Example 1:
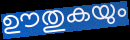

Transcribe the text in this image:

ഊതുകയും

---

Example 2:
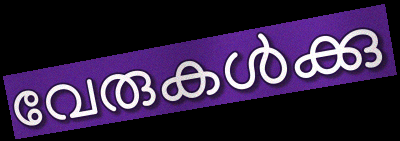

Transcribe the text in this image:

വേരുകൾക്കു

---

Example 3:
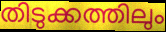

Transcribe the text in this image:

തിടുക്കത്തിലും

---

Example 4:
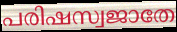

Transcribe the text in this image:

പരിഷസ്വജാതേ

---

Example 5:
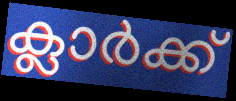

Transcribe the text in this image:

ക്ലാർക്ക്